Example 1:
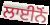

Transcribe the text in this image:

ਲਾਈਨੋਂ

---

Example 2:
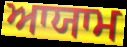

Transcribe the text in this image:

ਆਯਾਮ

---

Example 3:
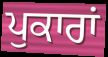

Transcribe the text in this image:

ਪੁਕਾਰਾਂ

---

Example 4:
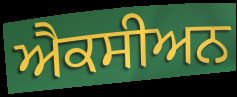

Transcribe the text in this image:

ਐਕਸੀਅਨ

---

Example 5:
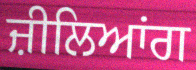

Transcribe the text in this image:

ਜ਼ੀਲਿਆਂਗ